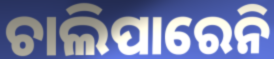
ଚାଲିପାରେନି